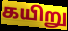
கயிறு